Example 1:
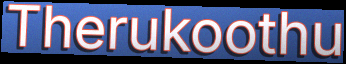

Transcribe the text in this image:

Therukoothu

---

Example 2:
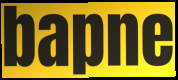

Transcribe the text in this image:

bapne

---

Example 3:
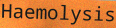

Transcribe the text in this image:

Haemolysis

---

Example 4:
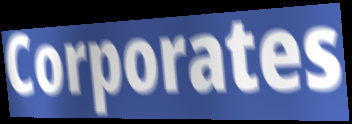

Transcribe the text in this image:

Corporates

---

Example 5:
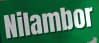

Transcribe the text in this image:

Nilambor